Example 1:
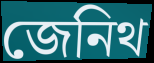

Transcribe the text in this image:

জেনিথ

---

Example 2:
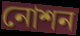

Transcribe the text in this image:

নোশন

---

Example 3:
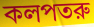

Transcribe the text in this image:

কলপতরু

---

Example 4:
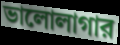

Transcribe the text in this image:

ভালোলাগার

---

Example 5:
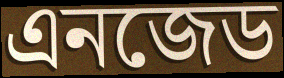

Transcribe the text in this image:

এনজেড